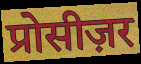
प्रोसीज़र